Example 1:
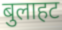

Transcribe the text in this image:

बुलाहट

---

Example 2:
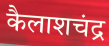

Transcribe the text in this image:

कैलाशचंद्र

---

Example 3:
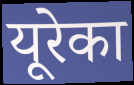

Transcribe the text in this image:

यूरेका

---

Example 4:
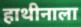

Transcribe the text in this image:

हाथीनाला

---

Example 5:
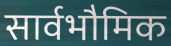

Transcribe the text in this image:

सार्वभौमिक